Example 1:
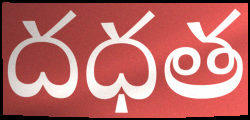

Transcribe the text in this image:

దధత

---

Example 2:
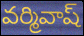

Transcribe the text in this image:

వర్మివాష్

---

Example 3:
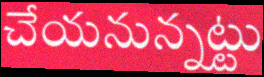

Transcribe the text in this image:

చేయనున్నట్టు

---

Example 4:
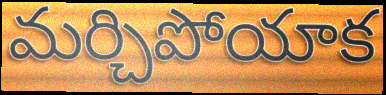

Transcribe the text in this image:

మర్చిపోయాక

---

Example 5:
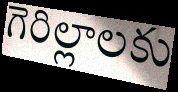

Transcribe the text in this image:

గెరిల్లాలకు